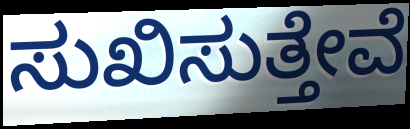
ಸುಖಿಸುತ್ತೇವೆ